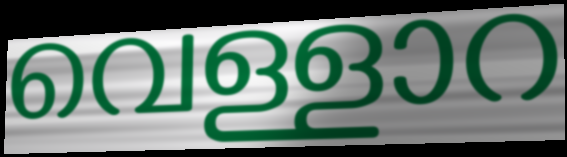
വെള്ളാറ